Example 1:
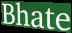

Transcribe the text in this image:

Bhate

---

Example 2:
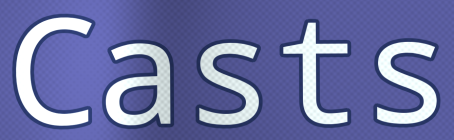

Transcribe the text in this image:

Casts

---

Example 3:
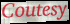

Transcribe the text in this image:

Coutesy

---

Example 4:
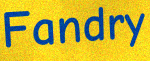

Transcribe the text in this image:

Fandry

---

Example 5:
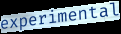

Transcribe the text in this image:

experimental